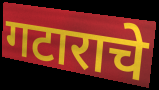
गटाराचे